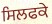
ਸਿਲਫਕੇ